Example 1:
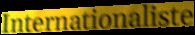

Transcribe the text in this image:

Internationaliste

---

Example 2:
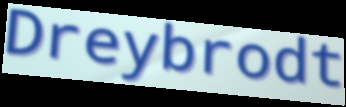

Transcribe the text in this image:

Dreybrodt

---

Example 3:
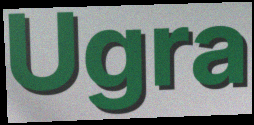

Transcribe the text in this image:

Ugra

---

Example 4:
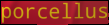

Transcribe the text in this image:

porcellus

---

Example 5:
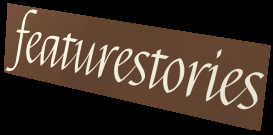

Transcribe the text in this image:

featurestories